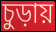
চুড়ায়